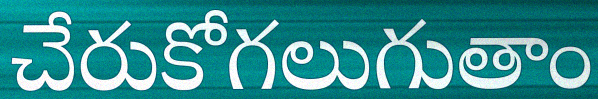
చేరుకోగలుగుతాం